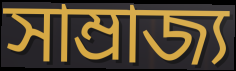
সাম্ৰাজ্য